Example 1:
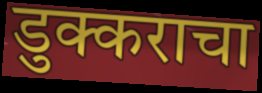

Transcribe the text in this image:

डुक्कराचा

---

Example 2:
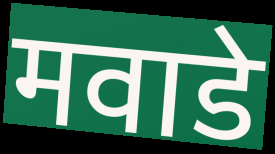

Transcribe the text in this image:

मवाडे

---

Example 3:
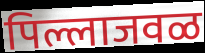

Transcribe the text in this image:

पिल्लाजवळ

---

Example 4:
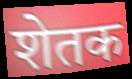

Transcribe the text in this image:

शेतक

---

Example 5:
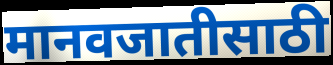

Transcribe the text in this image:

मानवजातीसाठी